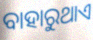
ବାହାରୁଥାଏ